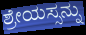
ಶ್ರೇಯಸ್ಸನ್ನು